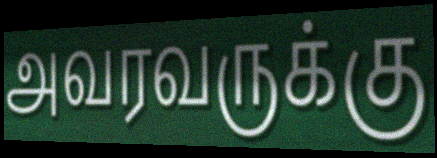
அவரவருக்கு